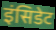
इंसिडेट